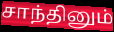
சாந்தினும்